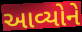
આવ્યોને